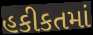
હકીકતમાં